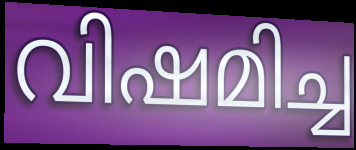
വിഷമിച്ച